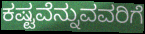
ಕಷ್ಟವೆನ್ನುವವರಿಗೆ